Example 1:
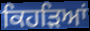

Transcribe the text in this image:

ਕਿਹੜਿਆਂ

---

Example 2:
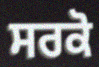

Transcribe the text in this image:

ਸਰਕੋ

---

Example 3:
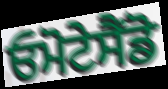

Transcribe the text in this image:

ਓਮੋਟੇਸੈਂਡੋ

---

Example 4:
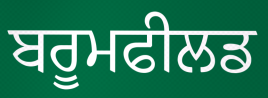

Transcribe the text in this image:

ਬਰੂਮਫੀਲਡ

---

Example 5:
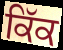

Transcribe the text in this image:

ਕਿੱਕ